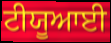
ਟੀਯੂਆਈ